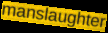
manslaughter